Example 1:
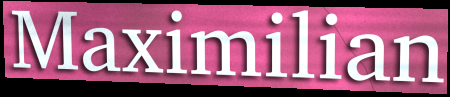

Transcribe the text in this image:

Maximilian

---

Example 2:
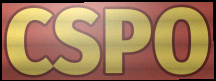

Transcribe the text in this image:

CSPO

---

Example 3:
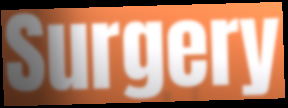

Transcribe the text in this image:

Surgery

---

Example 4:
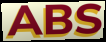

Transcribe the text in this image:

ABS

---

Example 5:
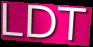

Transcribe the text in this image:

LDT